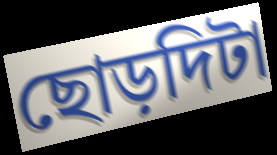
ছোড়দিটা